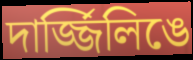
দার্জ্জিলিঙে